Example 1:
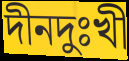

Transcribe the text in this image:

দীনদুঃখী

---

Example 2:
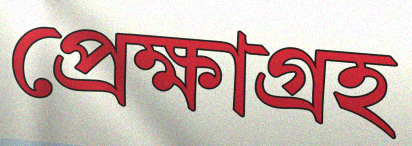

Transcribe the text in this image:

প্রেক্ষাগ্রহ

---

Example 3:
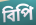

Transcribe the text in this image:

বিপি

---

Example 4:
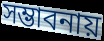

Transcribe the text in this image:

সম্ভাবনায়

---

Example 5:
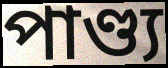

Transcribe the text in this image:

পাণ্ড্য